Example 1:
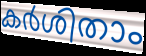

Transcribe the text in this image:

കർശിതാം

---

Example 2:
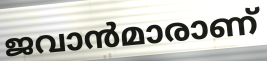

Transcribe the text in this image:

ജവാൻമാരാണ്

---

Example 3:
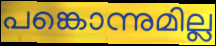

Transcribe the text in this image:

പങ്കൊന്നുമില്ല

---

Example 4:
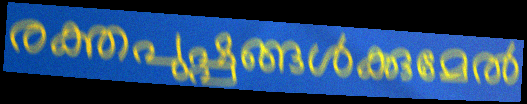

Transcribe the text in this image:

രക്തപുഷ്പങ്ങൾക്കുമേൽ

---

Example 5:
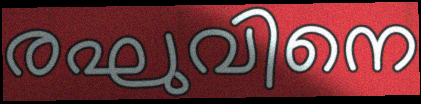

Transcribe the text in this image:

രഘുവിനെ